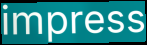
impress